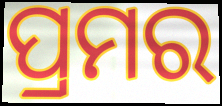
ପ୍ରମର